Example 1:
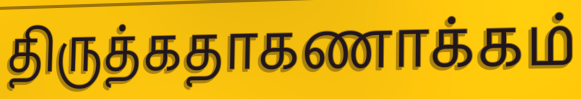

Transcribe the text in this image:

திருத்கதாகணாக்கம்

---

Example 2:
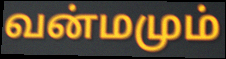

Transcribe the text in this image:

வன்மமும்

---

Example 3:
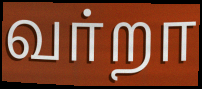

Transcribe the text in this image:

வர்றா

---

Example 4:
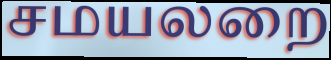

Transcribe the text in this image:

சமயலறை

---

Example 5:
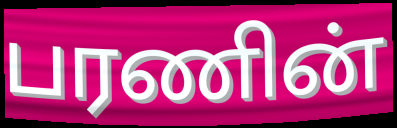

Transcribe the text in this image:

பரணின்